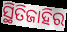
ସ୍ଥିତିଜାହିର